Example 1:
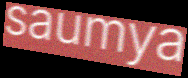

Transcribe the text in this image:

saumya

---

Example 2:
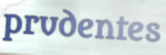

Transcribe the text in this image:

prudentes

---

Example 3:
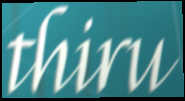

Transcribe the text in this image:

thiru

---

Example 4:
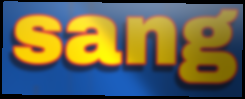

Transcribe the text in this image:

sang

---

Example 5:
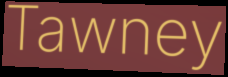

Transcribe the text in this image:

Tawney